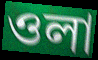
ওলা